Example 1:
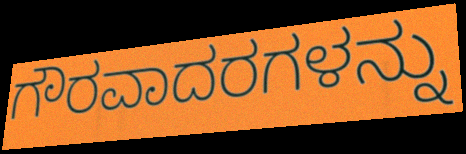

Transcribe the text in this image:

ಗೌರವಾದರಗಳನ್ನು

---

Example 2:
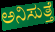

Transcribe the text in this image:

ಅನಿಸುತ್ತೆ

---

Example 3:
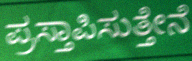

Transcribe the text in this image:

ಪ್ರಸ್ತಾಪಿಸುತ್ತೇನೆ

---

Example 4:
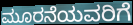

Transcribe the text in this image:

ಮೂರನೆಯವರಿಗೆ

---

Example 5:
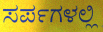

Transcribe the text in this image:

ಸರ್ಪಗಳಲ್ಲಿ